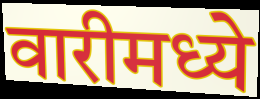
वारीमध्ये